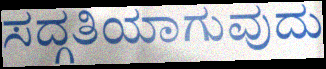
ಸದ್ಗತಿಯಾಗುವುದು